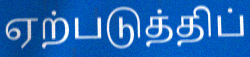
ஏற்படுத்திப்